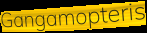
Gangamopteris